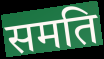
समति